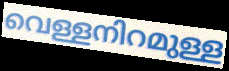
വെള്ളനിറമുള്ള